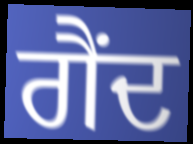
ਗੈਂਦ